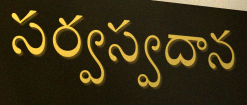
సర్వస్వదాన